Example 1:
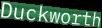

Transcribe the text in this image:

Duckworth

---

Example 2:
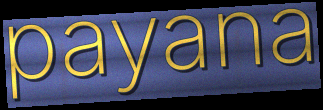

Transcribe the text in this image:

payana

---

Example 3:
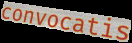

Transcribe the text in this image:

convocatis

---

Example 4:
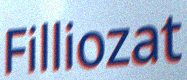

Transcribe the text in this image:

Filliozat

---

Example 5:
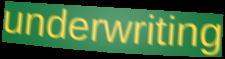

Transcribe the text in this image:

underwriting